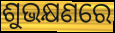
ଶୁଭକ୍ଷଣରେ